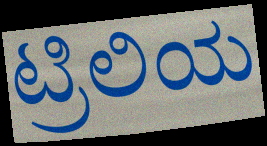
ಟ್ರಿಲಿಯ